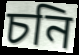
চনি